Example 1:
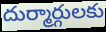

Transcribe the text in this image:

దుర్మార్గులకు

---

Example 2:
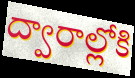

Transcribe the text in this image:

ద్వారాల్లోకి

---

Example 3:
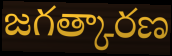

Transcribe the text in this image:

జగత్కారణ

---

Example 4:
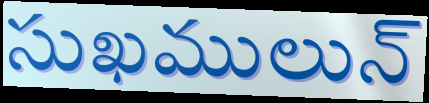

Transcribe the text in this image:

సుఖములున్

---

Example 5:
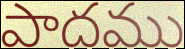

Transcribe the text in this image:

పాదము